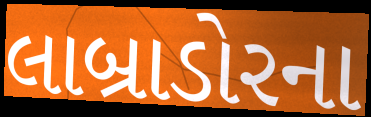
લાબ્રાડોરના